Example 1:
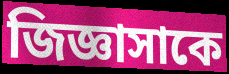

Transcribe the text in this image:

জিজ্ঞাসাকে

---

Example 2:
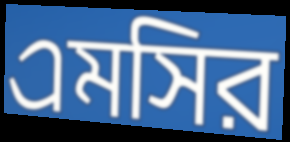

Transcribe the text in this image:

এমসির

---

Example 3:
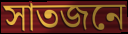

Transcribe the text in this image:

সাতজনে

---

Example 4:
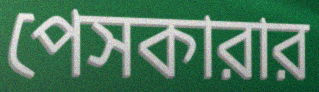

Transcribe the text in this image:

পেসকারার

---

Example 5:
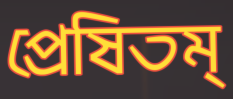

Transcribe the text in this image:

প্রেষিতম্